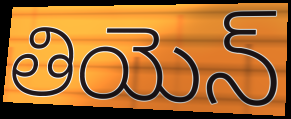
తియెన్